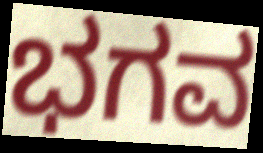
ಭಗವ